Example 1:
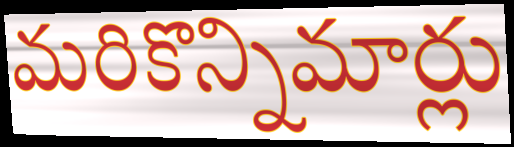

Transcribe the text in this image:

మరికొన్నిమార్లు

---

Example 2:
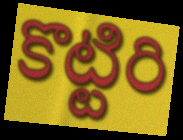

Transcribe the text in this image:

కొట్టిరి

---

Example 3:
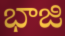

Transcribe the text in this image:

భాజి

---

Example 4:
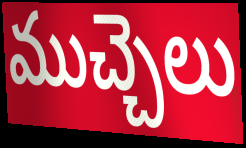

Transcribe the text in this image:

ముచ్చెలు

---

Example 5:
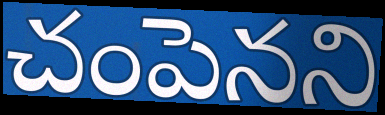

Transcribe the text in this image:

చంపెనని